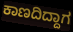
ಕಾಣದಿದ್ದಾಗ